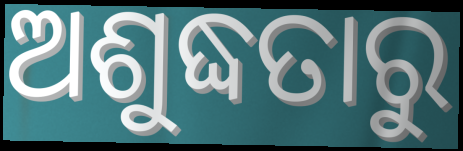
ଅଶୁଦ୍ଧତାରୁ